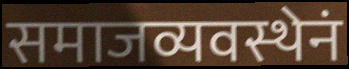
समाजव्यवस्थेनं